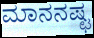
ಮಾನನಷ್ಟ